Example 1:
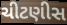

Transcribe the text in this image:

ચીટણીસ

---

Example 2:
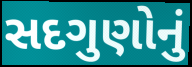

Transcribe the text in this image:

સદગુણોનું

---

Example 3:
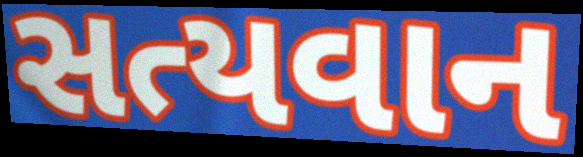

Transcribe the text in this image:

સત્યવાન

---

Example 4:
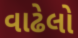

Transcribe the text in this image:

વાઢેલો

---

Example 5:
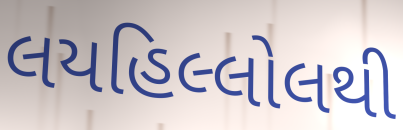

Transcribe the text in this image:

લયહિલ્લોલથી